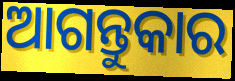
ଆଗନ୍ତୁକାର